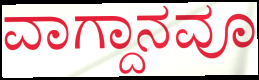
ವಾಗ್ದಾನವೂ